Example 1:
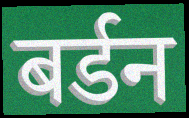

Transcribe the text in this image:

बर्डन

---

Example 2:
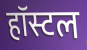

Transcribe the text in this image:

हॉस्टल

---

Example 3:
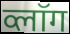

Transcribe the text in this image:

व्लॉग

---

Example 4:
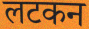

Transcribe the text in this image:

लटकन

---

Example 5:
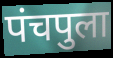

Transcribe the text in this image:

पंचपुला